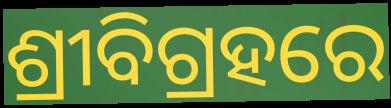
ଶ୍ରୀବିଗ୍ରହରେ